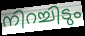
നിറച്ചിടും